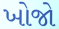
ખોજો